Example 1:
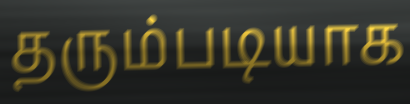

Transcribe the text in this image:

தரும்படியாக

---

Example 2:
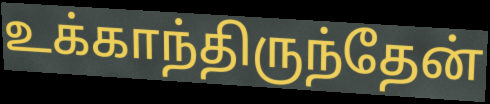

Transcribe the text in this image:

உக்காந்திருந்தேன்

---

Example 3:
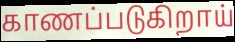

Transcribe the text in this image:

காணப்படுகிறாய்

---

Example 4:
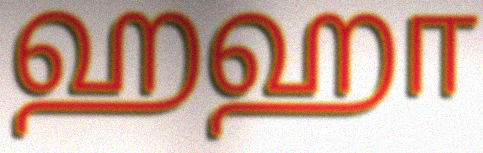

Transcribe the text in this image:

ஹஹா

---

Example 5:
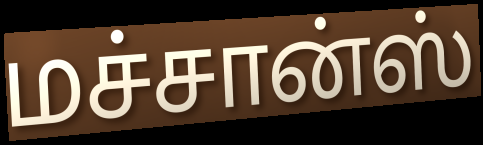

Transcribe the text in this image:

மச்சான்ஸ்